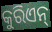
କୁରିଏନ୍